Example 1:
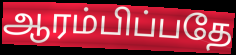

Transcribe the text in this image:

ஆரம்பிப்பதே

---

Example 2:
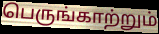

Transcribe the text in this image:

பெருங்காற்றும்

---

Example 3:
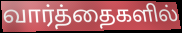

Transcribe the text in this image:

வார்த்தைகளில்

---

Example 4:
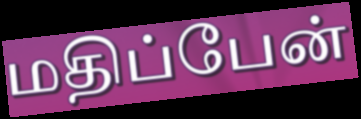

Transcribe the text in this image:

மதிப்பேன்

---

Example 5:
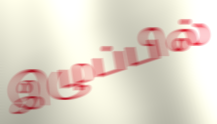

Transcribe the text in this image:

இழுப்பில்